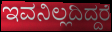
ಇವನಿಲ್ಲದಿದ್ದರೆ